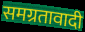
समग्रतावादी